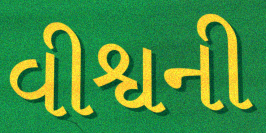
વીશ્વની